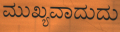
ಮುಖ್ಯವಾದುದು